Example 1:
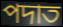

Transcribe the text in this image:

পদাত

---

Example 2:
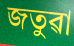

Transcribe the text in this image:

জতুৱা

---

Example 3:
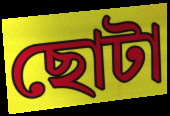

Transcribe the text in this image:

ছোটা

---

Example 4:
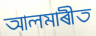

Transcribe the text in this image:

আলমাৰীত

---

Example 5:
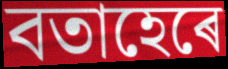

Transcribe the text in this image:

বতাহেৰে